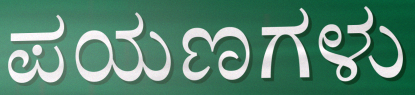
ಪಯಣಗಳು